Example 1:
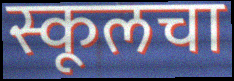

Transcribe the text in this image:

स्कूलचा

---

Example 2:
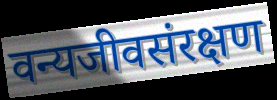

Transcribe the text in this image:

वन्यजीवसंरक्षण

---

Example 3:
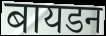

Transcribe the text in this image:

बायडन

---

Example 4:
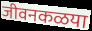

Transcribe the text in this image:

जीवनकळया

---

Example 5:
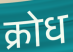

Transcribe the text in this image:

क्रोध